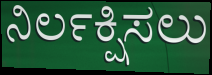
ನಿರ್ಲಕ್ಷಿಸಲು